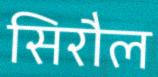
सिरौल